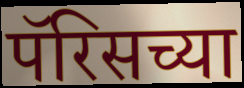
पॅरिसच्या